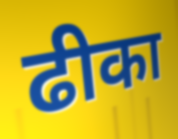
ढीका